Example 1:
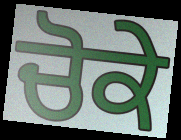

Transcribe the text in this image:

ਚੋਕੇ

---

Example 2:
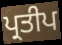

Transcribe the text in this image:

ਪ੍ਰਤੀਪ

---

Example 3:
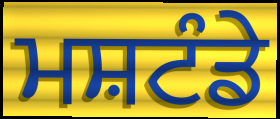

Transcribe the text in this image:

ਮਸ਼ਟੰਡੇ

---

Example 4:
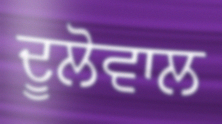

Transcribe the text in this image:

ਦੂਲੋਵਾਲ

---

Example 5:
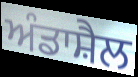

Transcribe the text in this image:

ਅੰਡਾਸ਼ੈਲ